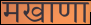
मखाणा